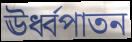
ঊর্ধ্বপাতন